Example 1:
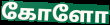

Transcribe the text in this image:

கோளோ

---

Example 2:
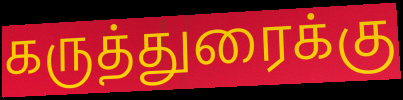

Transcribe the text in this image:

கருத்துரைக்கு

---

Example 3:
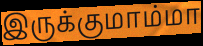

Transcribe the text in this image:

இருக்குமாம்மா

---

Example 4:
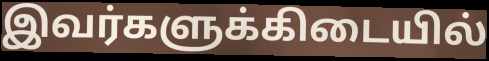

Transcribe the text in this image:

இவர்களுக்கிடையில்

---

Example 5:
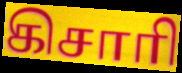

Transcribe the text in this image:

கிசாரி